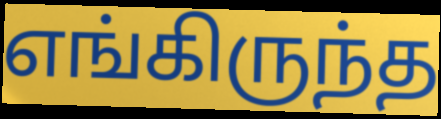
எங்கிருந்த